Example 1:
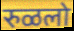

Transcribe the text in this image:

रुळलो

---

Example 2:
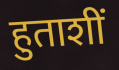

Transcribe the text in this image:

हुताशीं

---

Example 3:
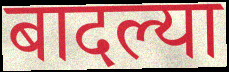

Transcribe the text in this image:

बादल्या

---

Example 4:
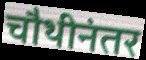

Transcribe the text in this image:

चौथीनंतर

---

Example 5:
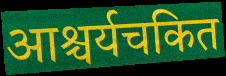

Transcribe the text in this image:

आश्चर्यचकित